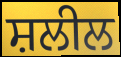
ਸ਼ਲੀਲ